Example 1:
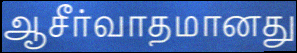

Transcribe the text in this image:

ஆசீர்வாதமானது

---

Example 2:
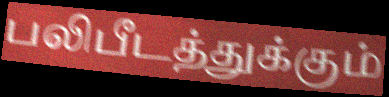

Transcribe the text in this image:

பலிபீடத்துக்கும்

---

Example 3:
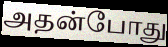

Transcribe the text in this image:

அதன்போது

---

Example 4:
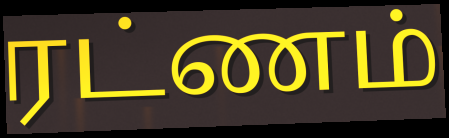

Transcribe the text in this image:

ரட்ணம்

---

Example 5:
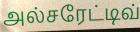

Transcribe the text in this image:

அல்சரேட்டிவ்